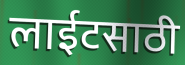
लाईटसाठी